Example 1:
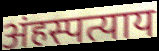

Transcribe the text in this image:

अंहस्पत्याय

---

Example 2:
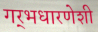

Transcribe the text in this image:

गर्भधारणेशी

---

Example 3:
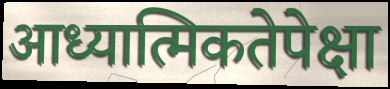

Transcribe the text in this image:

आध्यात्मिकतेपेक्षा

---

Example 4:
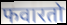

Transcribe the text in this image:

फवारतो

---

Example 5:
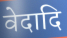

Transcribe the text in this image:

वेदादि